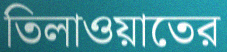
তিলাওয়াতের